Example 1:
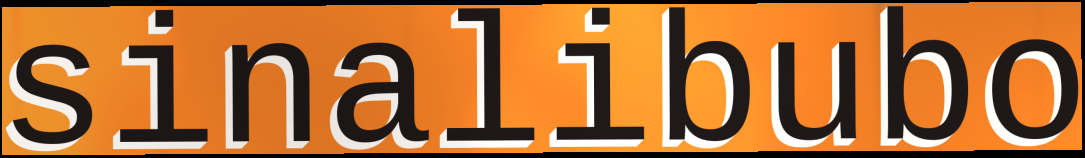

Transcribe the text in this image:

sinalibubo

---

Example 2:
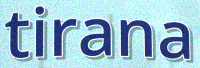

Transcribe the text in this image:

tirana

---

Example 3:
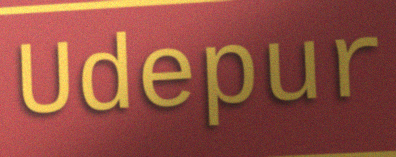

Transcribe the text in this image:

Udepur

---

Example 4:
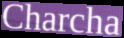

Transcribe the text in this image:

Charcha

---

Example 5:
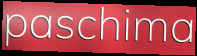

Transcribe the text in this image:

paschima